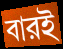
বারই